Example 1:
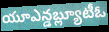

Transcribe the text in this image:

యూఎన్డబ్ల్యూటీఓ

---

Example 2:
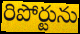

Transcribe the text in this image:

రిపోర్టును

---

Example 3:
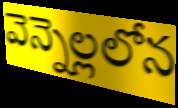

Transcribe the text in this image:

వెన్నెల్లలోన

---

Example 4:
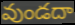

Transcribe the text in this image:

వుండదా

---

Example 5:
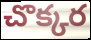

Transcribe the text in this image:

చొక్కర